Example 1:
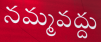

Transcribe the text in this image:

నమ్మవద్దు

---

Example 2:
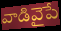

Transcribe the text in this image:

వాడివైపే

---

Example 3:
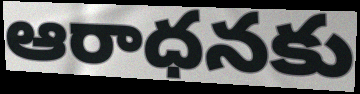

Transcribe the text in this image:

ఆరాధనకు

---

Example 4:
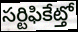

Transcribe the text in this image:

సర్టిఫికేట్తో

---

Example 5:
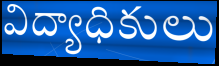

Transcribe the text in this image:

విద్యాధికులు